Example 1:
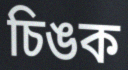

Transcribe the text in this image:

চিঙক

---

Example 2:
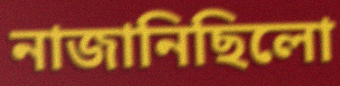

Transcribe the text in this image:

নাজানিছিলো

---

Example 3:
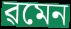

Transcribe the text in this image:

ৱমেন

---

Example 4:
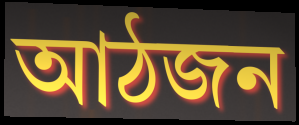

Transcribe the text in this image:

আঠজন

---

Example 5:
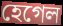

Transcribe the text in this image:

হেগেল